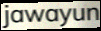
jawayun